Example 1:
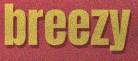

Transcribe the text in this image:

breezy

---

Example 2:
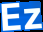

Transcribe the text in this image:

Ez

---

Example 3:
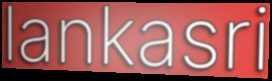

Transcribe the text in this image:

lankasri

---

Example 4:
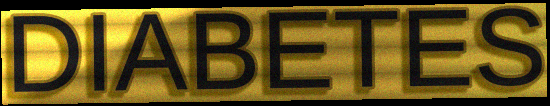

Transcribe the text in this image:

DIABETES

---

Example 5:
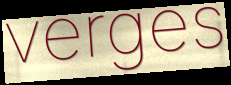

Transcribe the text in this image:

verges